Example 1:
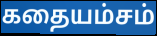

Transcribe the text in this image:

கதையம்சம்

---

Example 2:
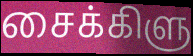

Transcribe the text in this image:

சைக்கிளு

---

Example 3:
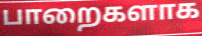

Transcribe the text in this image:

பாறைகளாக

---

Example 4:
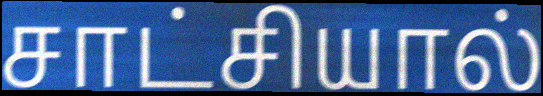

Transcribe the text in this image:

சாட்சியால்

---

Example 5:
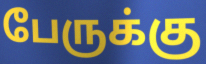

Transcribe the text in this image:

பேருக்கு